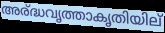
അര്ദ്ധവൃത്താകൃതിയില്